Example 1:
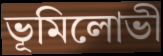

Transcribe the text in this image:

ভূমিলোভী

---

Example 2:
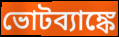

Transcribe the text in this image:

ভোটব্যাঙ্কে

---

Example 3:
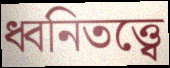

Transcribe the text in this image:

ধ্বনিতত্ত্বে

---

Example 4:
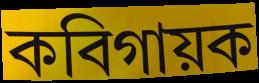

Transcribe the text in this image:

কবিগায়ক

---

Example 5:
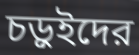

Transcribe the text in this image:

চড়ুইদের